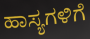
ಹಾಸ್ಯಗಳಿಗೆ